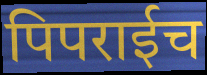
पिपराईच